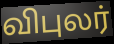
விபுலர்